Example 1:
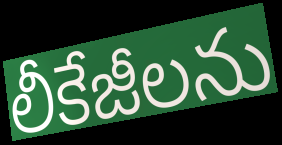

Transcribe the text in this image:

లీకేజీలను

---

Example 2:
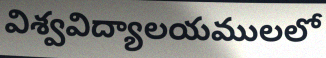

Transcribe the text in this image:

విశ్వవిద్యాలయములలో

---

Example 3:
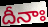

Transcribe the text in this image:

దీనాః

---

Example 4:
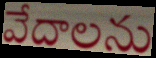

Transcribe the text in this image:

వేదాలను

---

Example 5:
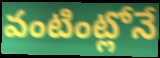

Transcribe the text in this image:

వంటింట్లోనే